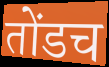
तोंडच